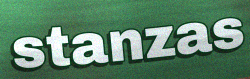
stanzas